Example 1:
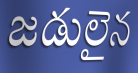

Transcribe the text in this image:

జడులైన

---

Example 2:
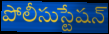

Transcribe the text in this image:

పోలీసుస్టేషన్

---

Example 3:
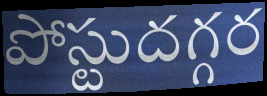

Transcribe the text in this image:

పోస్టుదగ్గర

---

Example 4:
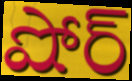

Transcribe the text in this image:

షోర్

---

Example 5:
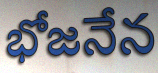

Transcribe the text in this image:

భోజనేన